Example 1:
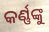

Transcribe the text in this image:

କର୍ଣ୍ଣଙ୍କୁ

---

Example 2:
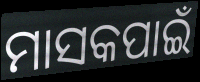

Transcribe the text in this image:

ମାସକପାଇଁ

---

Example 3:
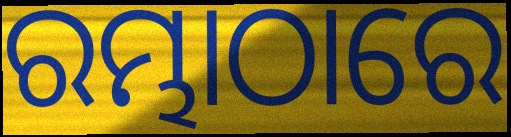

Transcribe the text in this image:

ରମ୍ଭାଠାରେ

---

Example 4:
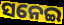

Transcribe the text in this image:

ସନେଇ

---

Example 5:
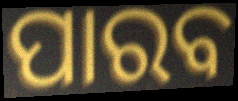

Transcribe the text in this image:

ପାରବ